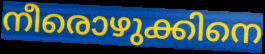
നീരൊഴുക്കിനെ